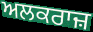
ਅਲਕਰਾਜ਼